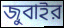
জুবাইর